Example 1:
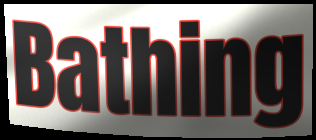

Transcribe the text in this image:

Bathing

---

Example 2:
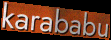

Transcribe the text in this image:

karababu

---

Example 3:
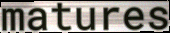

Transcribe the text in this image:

matures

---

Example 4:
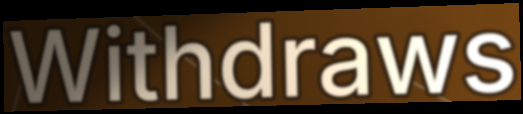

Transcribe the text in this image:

Withdraws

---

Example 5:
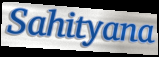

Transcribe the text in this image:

Sahityana